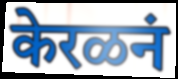
केरळनं